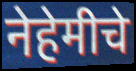
नेहेमीचे